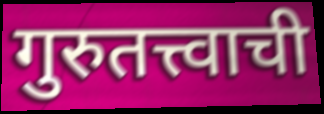
गुरुतत्त्वाची